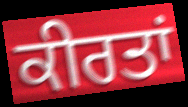
ਕੀਰਤਾਂ